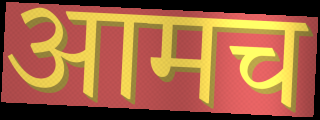
आमच